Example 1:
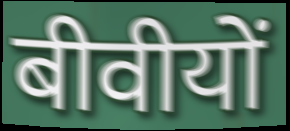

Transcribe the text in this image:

बीवीयों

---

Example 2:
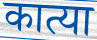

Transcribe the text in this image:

कात्या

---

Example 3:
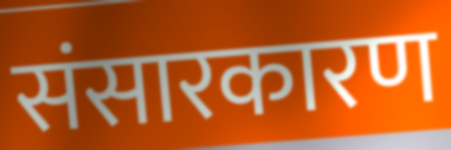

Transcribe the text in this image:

संसारकारण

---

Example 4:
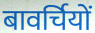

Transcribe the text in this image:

बावर्चियों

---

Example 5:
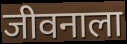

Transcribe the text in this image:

जीवनाला